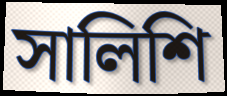
সালিশি